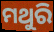
ମଥୁରି